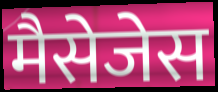
मैसेजेस